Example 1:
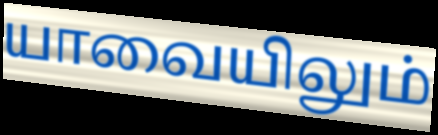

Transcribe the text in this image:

யாவையிலும்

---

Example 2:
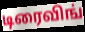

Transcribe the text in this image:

டிரைவிங்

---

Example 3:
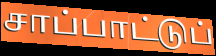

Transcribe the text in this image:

சாப்பாட்டுப்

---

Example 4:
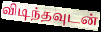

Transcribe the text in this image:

விடிந்தவுடன்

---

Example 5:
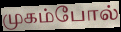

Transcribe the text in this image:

முகம்போல்